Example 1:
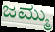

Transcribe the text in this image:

ಜಮ್ಮು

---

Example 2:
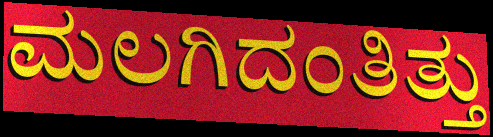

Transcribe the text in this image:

ಮಲಗಿದಂತಿತ್ತು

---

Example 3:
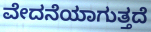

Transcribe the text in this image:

ವೇದನೆಯಾಗುತ್ತದೆ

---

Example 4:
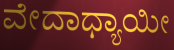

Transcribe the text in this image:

ವೇದಾಧ್ಯಾಯೀ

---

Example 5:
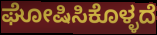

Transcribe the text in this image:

ಘೋಷಿಸಿಕೊಳ್ಳದೆ